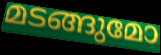
മടങ്ങുമോ